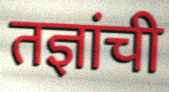
तज्ञांची